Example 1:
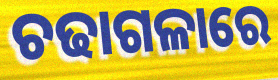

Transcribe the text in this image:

ଚଢାଗଳାରେ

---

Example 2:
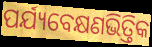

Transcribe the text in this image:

ପର୍ଯ୍ୟବେକ୍ଷଣଭିତ୍ତିକ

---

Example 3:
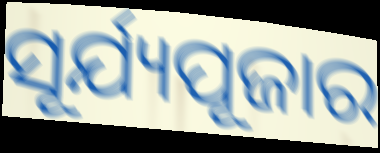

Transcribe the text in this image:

ସୂର୍ଯ୍ୟପୂଜାର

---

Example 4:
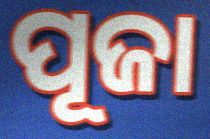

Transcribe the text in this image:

ପୂଜା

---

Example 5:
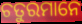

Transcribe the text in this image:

ଚତୁରମାନେ